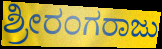
ಶ್ರೀರಂಗರಾಜು